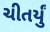
ચીતર્યું